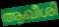
ആഖീശി